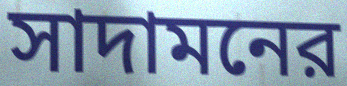
সাদামনের